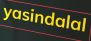
yasindalal